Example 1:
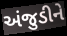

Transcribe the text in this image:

અંજુડીને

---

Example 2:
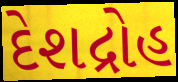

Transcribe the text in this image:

દેશદ્રોહ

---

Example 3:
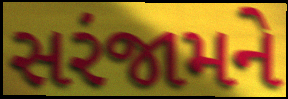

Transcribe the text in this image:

સરંજામને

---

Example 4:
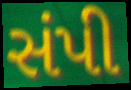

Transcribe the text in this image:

સંપી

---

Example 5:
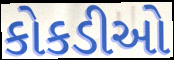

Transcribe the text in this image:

કોકડીઓ